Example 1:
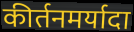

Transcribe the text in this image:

कीर्तनमर्यादा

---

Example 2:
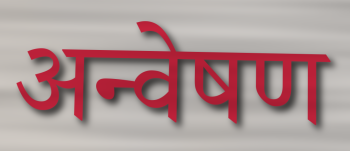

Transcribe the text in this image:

अन्वेषण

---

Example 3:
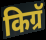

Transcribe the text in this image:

किग्रॅ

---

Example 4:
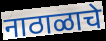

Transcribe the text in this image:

नाठाळाचे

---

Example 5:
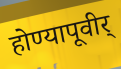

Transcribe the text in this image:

होण्यापूवीर्